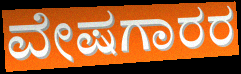
ವೇಷಗಾರರ